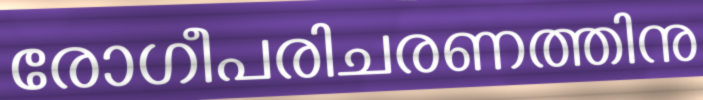
രോഗീപരിചരണത്തിനു